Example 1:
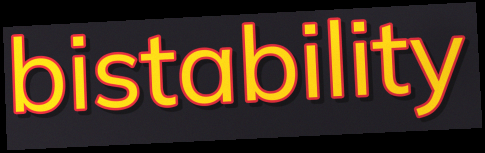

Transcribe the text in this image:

bistability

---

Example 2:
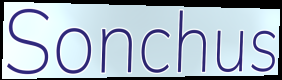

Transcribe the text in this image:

Sonchus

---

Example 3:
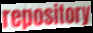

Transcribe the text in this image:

repository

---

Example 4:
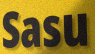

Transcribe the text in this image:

Sasu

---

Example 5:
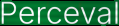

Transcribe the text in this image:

Perceval